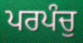
ਪਰਪੰਚੁ